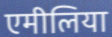
एमीलिया